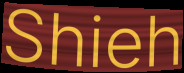
Shieh